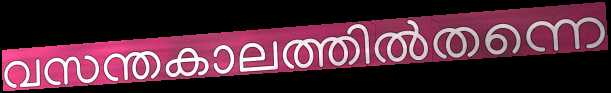
വസന്തകാലത്തിൽതന്നെ